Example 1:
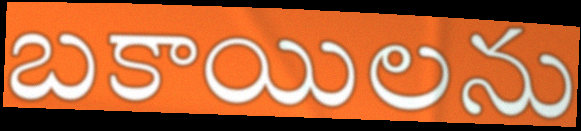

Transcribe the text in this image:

బకాయిలను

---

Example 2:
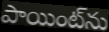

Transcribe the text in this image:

పాయింట్‌ను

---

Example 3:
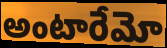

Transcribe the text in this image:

అంటారేమో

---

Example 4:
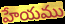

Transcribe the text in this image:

హేయము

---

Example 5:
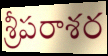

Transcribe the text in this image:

శ్రీపరాశర